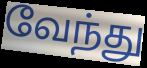
வேந்து